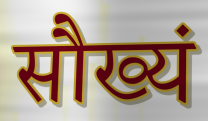
सौख्यं